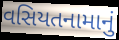
વસિયતનામાનું